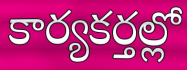
కార్యకర్తల్లో